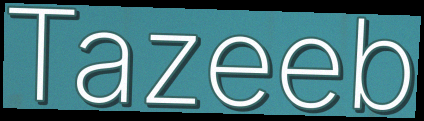
Tazeeb